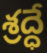
శ్రద్ధే